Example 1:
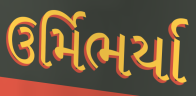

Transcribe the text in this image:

ઉર્મિભર્યા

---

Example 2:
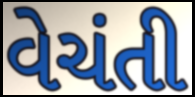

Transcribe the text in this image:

વેચંતી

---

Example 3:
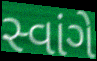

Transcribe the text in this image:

સ્વાંગે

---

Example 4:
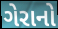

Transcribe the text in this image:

ગેરાનો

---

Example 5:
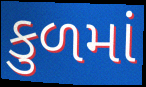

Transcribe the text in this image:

કુળમાં